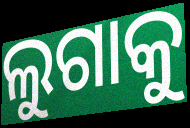
ଲୁଗାକୁ